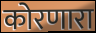
कोरणारा